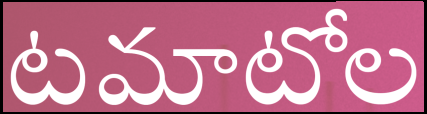
టమాటోల